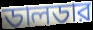
ডালডার